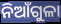
ନିଆଁଗୁଳା